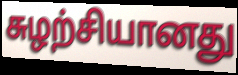
சுழற்சியானது